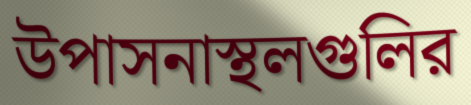
উপাসনাস্থলগুলির